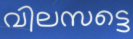
വിലസട്ടെ